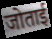
जोताई